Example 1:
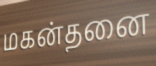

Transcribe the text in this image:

மகன்தனை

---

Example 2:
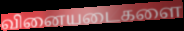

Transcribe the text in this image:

வினையடைகளை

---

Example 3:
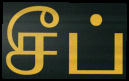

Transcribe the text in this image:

சீப்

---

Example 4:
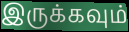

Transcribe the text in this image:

இருக்கவும்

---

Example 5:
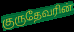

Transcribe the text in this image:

குருதேவரின்